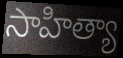
సాహిత్యా